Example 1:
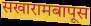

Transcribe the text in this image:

सखारामबापूस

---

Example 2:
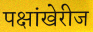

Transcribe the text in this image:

पक्षांखेरीज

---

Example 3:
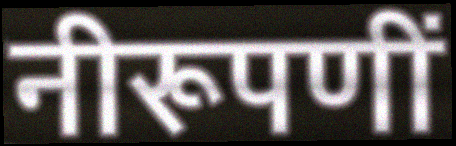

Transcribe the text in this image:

नीरूपणीं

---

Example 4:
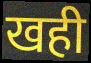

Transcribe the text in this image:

खही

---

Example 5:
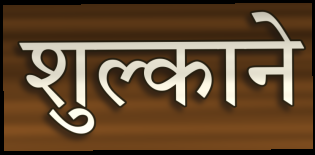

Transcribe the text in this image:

शुल्काने